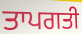
ਤਾਪਗਤੀ